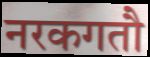
नरकगतौ